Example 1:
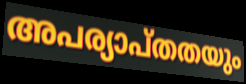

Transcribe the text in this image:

അപര്യാപ്തതയും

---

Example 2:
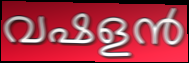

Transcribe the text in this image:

വഷളൻ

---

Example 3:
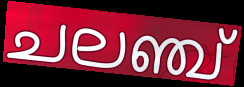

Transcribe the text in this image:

ചലഞ്ച്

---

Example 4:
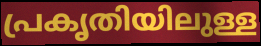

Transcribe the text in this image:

പ്രകൃതിയിലുള്ള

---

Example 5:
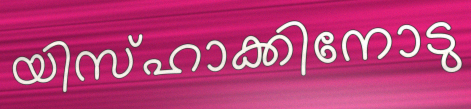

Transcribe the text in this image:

യിസ്ഹാക്കിനോടു